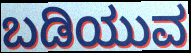
ಬಡಿಯುವ